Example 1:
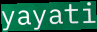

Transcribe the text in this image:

yayati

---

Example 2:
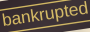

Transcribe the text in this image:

bankrupted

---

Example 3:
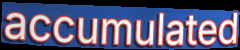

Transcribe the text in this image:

accumulated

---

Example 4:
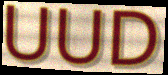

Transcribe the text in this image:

UUD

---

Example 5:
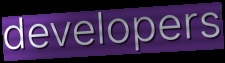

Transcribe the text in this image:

developers